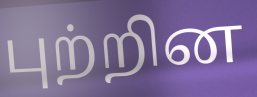
புற்றின